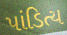
પાંડિત્ય